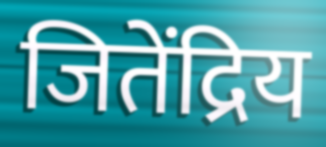
जितेंद्रिय